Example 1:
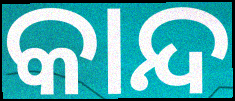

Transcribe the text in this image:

କାନ୍ଦ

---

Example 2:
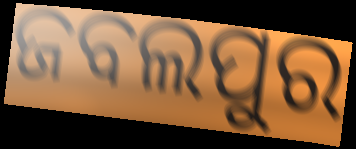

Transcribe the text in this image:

ଜବଲପୁର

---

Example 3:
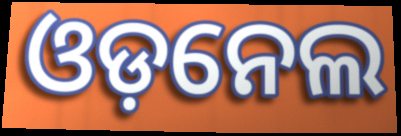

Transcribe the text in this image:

ଓଡ଼ନେଲ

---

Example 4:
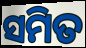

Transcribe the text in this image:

ସମିତ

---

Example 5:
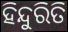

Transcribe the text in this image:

ହିନ୍ଦୁରିତି